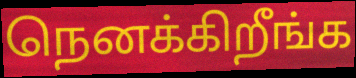
நெனக்கிறீங்க